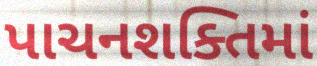
પાચનશક્તિમાં